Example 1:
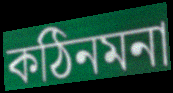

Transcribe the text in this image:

কঠিনমনা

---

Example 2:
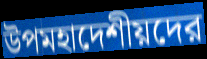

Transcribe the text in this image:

উপমহাদেশীয়দের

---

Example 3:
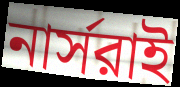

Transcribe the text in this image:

নার্সরাই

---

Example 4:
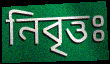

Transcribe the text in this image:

নিবৃত্তঃ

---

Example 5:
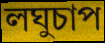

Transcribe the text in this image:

লঘুচাপ